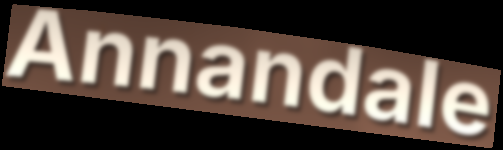
Annandale